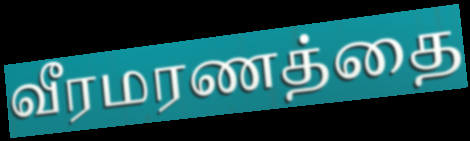
வீரமரணத்தை